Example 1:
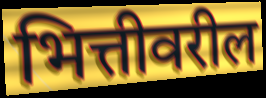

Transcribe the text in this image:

भित्तीवरील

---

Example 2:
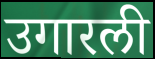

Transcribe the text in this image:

उगारली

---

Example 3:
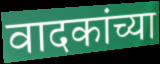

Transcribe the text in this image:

वादकांच्या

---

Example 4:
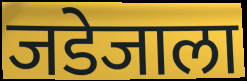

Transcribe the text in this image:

जडेजाला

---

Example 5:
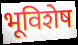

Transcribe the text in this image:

भूविशेष